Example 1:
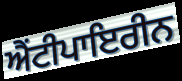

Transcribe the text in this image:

ਐਂਟੀਪਾਇਰੀਨ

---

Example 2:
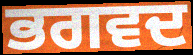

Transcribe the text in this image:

ਭਗਵਦ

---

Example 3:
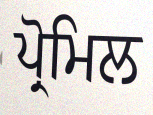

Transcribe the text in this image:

ਪ੍ਰੋਮਿਲ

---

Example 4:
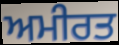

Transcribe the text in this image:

ਅਮੀਰਤ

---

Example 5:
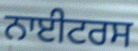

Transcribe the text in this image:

ਨਾਈਟਰਸ